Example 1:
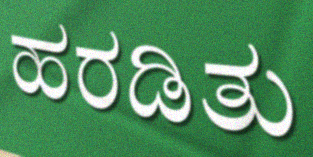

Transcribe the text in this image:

ಹರಡಿತು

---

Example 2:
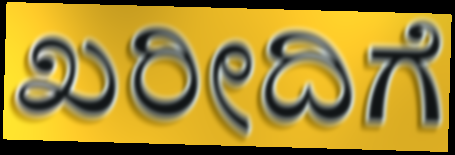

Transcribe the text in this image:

ಖರೀದಿಗೆ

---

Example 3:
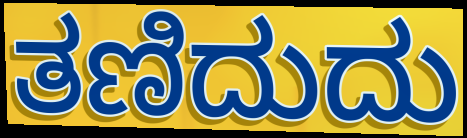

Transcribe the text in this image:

ತಣಿದುದು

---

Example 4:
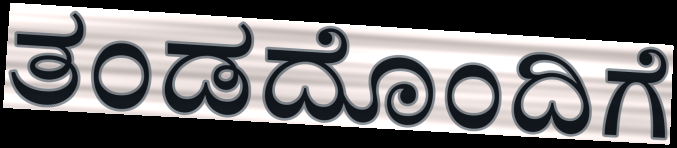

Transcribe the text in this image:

ತಂಡದೊಂದಿಗೆ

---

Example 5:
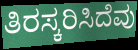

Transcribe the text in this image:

ತಿರಸ್ಕರಿಸಿದೆವು